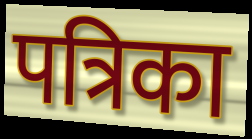
पत्रिका